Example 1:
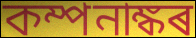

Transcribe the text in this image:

কম্পনাঙ্কৰ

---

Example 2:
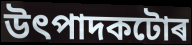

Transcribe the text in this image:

উৎপাদকটোৰ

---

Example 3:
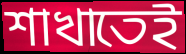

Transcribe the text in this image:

শাখাতেই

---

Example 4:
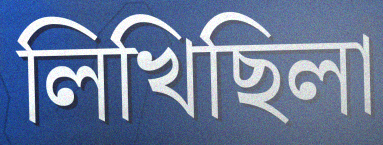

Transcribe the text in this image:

লিখিছিলা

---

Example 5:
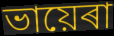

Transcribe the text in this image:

ভায়েৰা